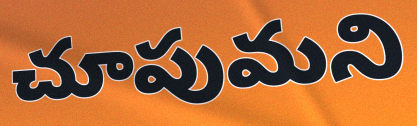
చూపుమని